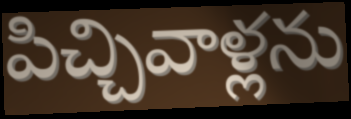
పిచ్చివాళ్లను